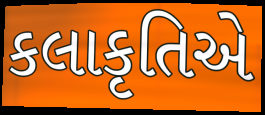
કલાકૃતિએ